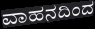
ವಾಹನದಿಂದ